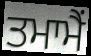
ਤਮਾਮੈਂ